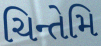
ચિન્તેમિ